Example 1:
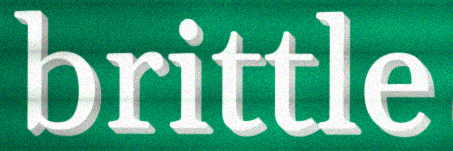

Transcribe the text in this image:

brittle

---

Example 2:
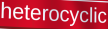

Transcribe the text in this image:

heterocyclic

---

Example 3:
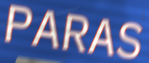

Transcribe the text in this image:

PARAS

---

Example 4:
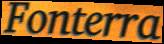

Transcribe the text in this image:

Fonterra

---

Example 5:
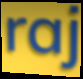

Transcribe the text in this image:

raj